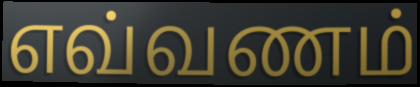
எவ்வணம்